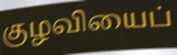
குழவியைப்